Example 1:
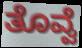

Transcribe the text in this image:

ತೊವ್ವೆ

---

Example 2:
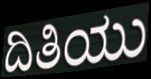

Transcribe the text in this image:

ದಿತಿಯು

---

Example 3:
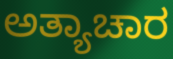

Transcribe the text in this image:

ಅತ್ಯಾಚಾರ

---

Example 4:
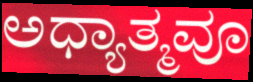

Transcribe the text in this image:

ಅಧ್ಯಾತ್ಮವೂ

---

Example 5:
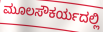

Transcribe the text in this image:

ಮೂಲಸೌಕರ್ಯದಲ್ಲಿ